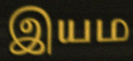
இயம